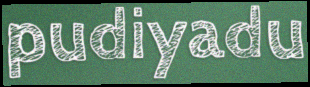
pudiyadu